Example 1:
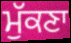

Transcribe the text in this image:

ਮੁੱਕਣਾ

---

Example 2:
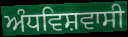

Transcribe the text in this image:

ਅੰਧਵਿਸ਼ਵਾਸੀ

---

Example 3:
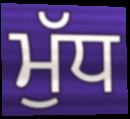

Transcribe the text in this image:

ਮੁੱਧ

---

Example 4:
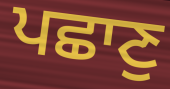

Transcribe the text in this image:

ਪਛਾਣੁ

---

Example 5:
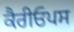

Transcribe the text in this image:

ਕੈਰੀਓਪਸ